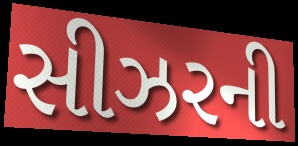
સીઝરની